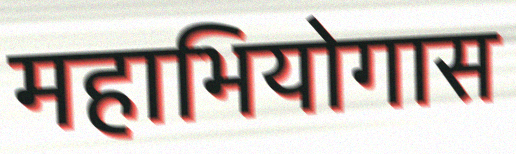
महाभियोगास